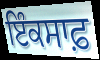
ਇੰਕਸਾਫ਼